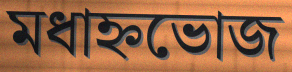
মধাহ্নভোজ